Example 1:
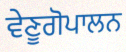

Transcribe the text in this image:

ਵੇਣੂਗੋਪਾਲਨ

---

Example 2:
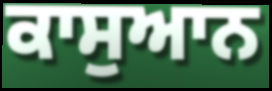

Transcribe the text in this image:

ਕਾਸੁਆਨ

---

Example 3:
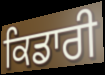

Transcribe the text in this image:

ਕਿਡਾਰੀ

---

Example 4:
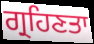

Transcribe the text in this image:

ਗ੍ਰਹਿਣਤਾ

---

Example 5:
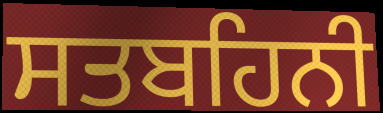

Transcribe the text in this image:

ਸਤਬਹਿਨੀ